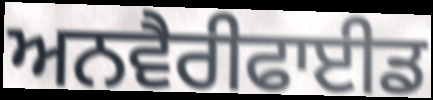
ਅਨਵੈਰੀਫਾਈਡ